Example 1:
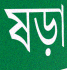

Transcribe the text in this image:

ষড়া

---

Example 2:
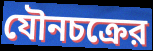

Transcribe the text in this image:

যৌনচক্রের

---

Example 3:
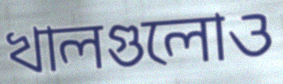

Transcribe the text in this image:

খালগুলোও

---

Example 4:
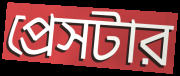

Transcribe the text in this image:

প্রেসটার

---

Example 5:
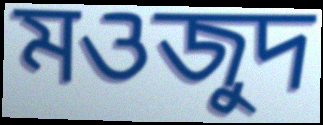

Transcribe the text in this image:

মওজুদ